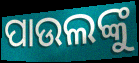
ପାଉଲଙ୍କୁ